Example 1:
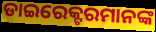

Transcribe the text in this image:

ଡାଇରେକ୍ଟରମାନଙ୍କ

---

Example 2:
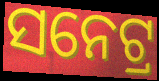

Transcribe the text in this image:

ସନେଟ୍ର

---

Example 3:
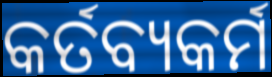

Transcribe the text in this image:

କର୍ତବ୍ଯକର୍ମ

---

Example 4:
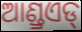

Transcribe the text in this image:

ଆଣ୍ଡ୍ରଏଡ୍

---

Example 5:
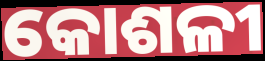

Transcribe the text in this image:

କୋଶଳୀ